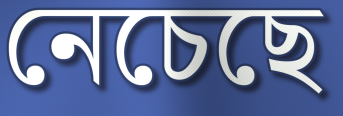
নেচেছে